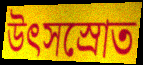
উৎসস্রোত